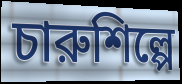
চারুশিল্পে